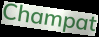
Champat